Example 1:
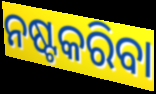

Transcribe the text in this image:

ନଷ୍ଟକରିବା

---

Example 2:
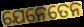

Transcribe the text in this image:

ଯେନେତେନ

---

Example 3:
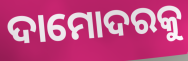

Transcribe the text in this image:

ଦାମୋଦରକୁ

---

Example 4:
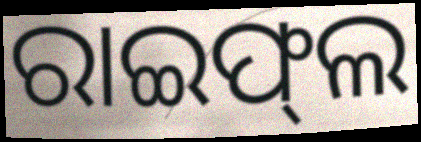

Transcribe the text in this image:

ରାଇଫ୍‌ଲ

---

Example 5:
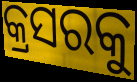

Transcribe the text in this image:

କ୍ରସରକୁ